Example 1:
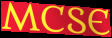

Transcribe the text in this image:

MCSE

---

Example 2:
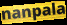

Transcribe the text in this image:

nanpala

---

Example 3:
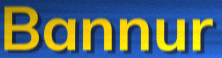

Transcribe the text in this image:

Bannur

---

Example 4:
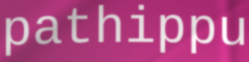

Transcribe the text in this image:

pathippu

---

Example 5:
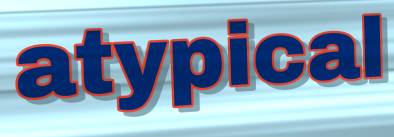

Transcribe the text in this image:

atypical